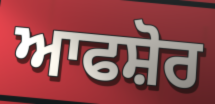
ਆਫਸ਼ੋਰ